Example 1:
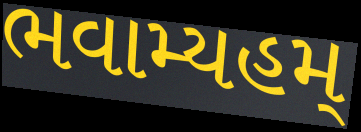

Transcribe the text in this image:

ભવામ્યહમ્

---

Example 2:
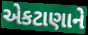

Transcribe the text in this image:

એકટાણાને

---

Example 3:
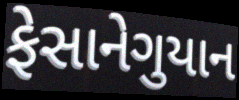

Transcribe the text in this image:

ફેસાનેગુયાન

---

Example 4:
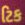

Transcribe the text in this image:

ટિક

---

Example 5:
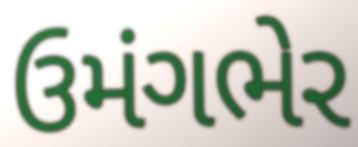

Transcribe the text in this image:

ઉમંગભેર